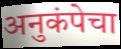
अनुकंपेचा